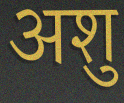
अशु